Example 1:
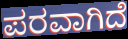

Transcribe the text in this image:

ಪರವಾಗಿದೆ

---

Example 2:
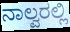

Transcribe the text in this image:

ನಾಲ್ವರಲ್ಲಿ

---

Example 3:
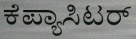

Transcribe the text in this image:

ಕೆಪ್ಯಾಸಿಟರ್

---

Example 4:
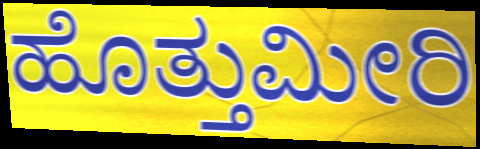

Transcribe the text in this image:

ಹೊತ್ತುಮೀರಿ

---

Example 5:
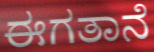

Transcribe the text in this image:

ಈಗತಾನೆ